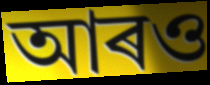
আৰও